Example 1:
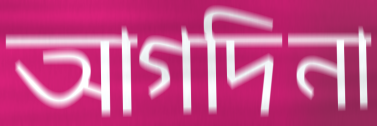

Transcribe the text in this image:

আগদিনা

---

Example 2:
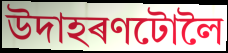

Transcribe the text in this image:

উদাহৰণটোলৈ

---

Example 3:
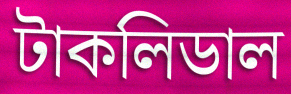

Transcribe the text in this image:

টাকলিডাল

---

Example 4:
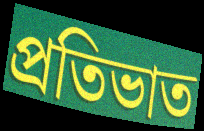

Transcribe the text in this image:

প্ৰতিভাত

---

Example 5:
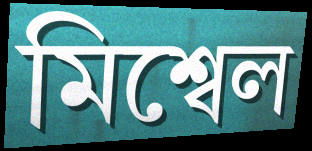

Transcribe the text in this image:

মিশ্বেল